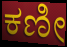
ಕಣೀ